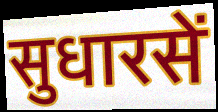
सुधारसें